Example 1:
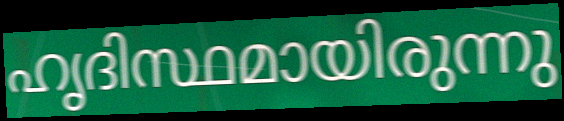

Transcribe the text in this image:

ഹൃദിസ്ഥമായിരുന്നു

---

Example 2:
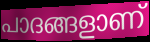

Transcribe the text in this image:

പാദങ്ങളാണ്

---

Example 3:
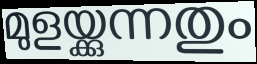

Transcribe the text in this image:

മുളയ്ക്കുന്നതും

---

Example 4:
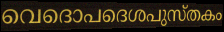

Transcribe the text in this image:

വെദൊപദെശപുസ്തകം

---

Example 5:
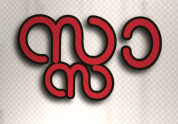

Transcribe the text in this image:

സ്സാ